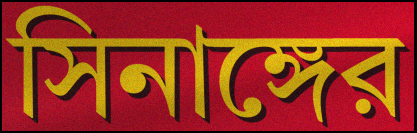
সিনাঙ্গের